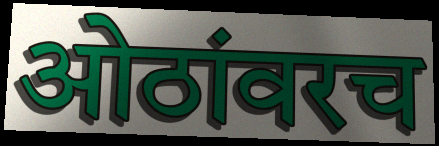
ओठांवरच